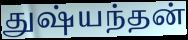
துஷ்யந்தன்